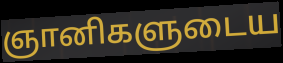
ஞானிகளுடைய